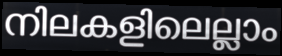
നിലകളിലെല്ലാം